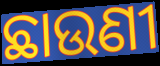
ଛାଉଣୀ